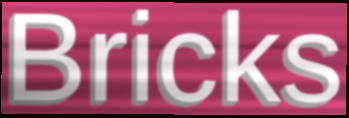
Bricks